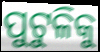
ପୁଟୁଳିକୁ